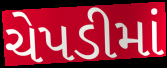
ચેપડીમાં